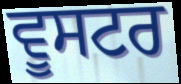
ਵੂਸਟਰ